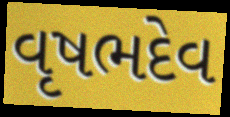
વૃષભદેવ